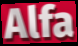
Alfa